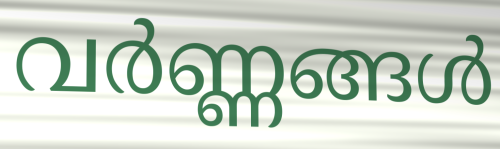
വർണ്ണങ്ങൾ